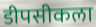
डीपसीकला